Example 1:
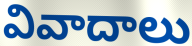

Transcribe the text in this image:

వివాదాలు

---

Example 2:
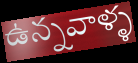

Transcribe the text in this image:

ఉన్నవాళ్ళ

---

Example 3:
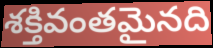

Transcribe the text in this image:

శక్తివంతమైనది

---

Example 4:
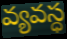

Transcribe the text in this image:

వ్యవస్ధ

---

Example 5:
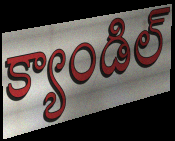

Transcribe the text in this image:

క్యాండిల్